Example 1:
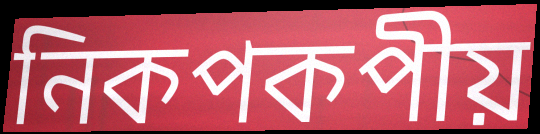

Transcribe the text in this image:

নিকপকপীয়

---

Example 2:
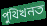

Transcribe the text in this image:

পুথিখনত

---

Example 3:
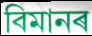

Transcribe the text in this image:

বিমানৰ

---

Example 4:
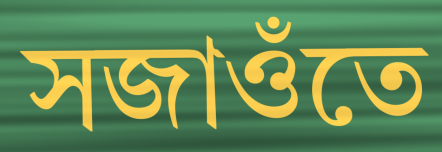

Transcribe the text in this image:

সজাওঁতে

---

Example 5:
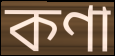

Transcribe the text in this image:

কণা